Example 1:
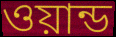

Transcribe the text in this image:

ওয়ান্ড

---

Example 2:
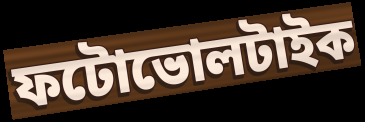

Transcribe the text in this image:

ফটোভোলটাইক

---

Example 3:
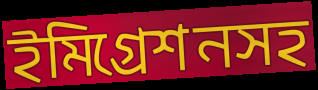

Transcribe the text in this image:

ইমিগ্রেশনসহ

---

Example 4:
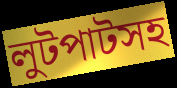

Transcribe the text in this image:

লুটপাটসহ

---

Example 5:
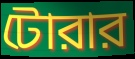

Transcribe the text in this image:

টোরার